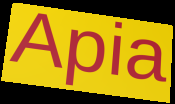
Apia